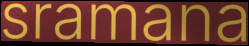
sramana